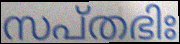
സപ്തഭിഃ